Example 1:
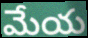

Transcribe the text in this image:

మేయ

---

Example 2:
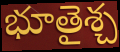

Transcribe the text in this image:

భూతైశ్చ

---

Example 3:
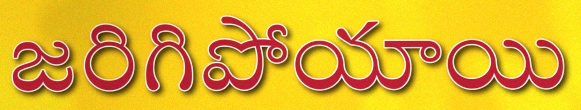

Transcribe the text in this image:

జరిగిపోయాయి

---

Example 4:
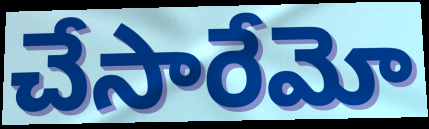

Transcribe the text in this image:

చేసారేమో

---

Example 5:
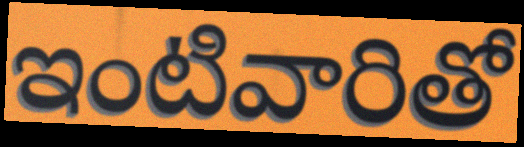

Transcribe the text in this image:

ఇంటివారితో